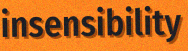
insensibility